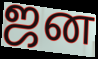
ஜன